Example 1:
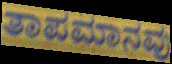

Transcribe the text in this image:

ತಾಪಮಾನವು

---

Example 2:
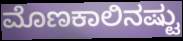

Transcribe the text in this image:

ಮೊಣಕಾಲಿನಷ್ಟು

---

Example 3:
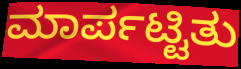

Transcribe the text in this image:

ಮಾರ್ಪಟ್ಟಿತು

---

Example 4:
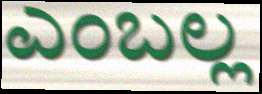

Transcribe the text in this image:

ಎಂಬಲ್ಲ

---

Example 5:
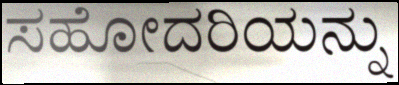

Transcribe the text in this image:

ಸಹೋದರಿಯನ್ನು